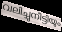
വലിച്ചുനീട്ടിയും